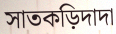
সাতকড়িদাদা